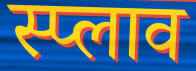
स्प्लाव